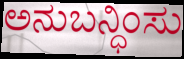
ಅನುಬನ್ಧಿಂಸು